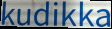
kudikka